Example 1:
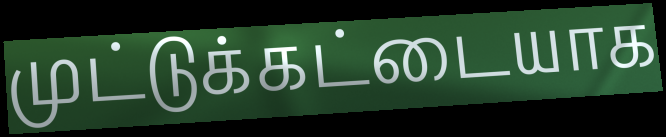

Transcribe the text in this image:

முட்டுக்கட்டையாக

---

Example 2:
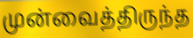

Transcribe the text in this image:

முன்வைத்திருந்த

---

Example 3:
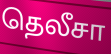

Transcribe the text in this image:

தெலீசா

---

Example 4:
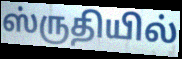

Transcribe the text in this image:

ஸ்ருதியில்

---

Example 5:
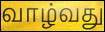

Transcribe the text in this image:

வாழ்வது